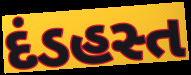
દંડહસ્ત